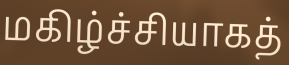
மகிழ்ச்சியாகத்